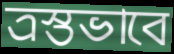
ত্রস্তভাবে